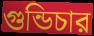
গুন্ডিচার